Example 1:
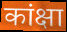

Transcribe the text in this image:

कांक्षा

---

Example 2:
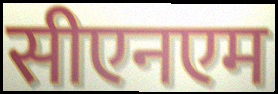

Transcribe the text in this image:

सीएनएम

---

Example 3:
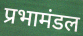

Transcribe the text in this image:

प्रभामंडल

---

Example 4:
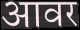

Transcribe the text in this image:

आवर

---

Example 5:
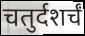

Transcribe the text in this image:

चतुर्दशर्चं